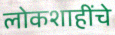
लोकशाहींचे